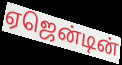
ஏஜென்டின்